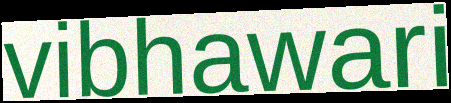
vibhawari